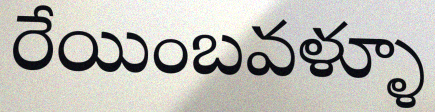
రేయింబవళ్ళూ